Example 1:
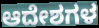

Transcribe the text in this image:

ಆದೇಶಗಳ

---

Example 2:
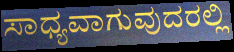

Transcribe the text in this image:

ಸಾಧ್ಯವಾಗುವುದರಲ್ಲಿ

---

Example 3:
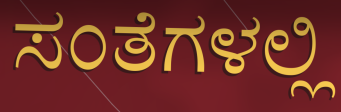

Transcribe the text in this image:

ಸಂತೆಗಳಲ್ಲಿ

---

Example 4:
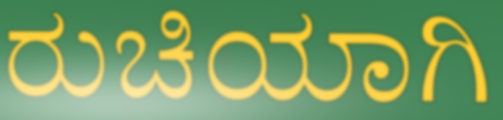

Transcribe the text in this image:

ರುಚಿಯಾಗಿ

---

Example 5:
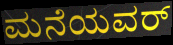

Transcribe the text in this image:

ಮನೆಯವರ್